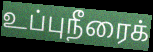
உப்புநீரைக்